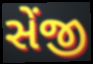
સેંજી